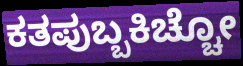
ಕತಪುಬ್ಬಕಿಚ್ಚೋ